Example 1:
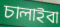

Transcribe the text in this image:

চালাইবা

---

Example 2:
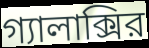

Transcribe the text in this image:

গ্যালাক্সির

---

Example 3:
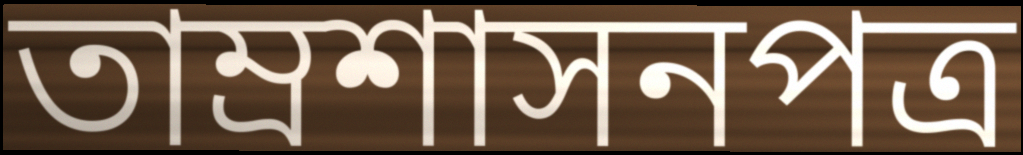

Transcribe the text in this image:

তাম্রশাসনপত্র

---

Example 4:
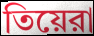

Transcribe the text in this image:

তিয়েরা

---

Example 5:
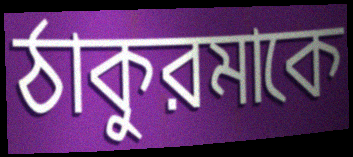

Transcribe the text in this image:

ঠাকুরমাকে